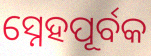
ସ୍ନେହପୂର୍ବକ